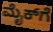
ಮೈಕ್‌ಗೆ